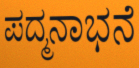
ಪದ್ಮನಾಭನೆ